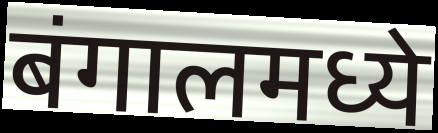
बंगालमध्ये